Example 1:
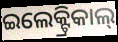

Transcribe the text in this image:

ଇଲେକ୍ଟ୍ରିକାଲ୍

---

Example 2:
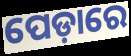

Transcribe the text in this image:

ପେଡ଼ାରେ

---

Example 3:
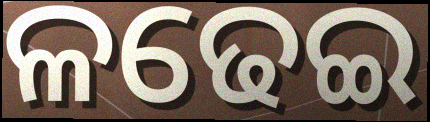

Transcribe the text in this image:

ଳଢେଇ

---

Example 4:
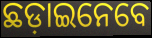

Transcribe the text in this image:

ଛଡ଼ାଇନେବେ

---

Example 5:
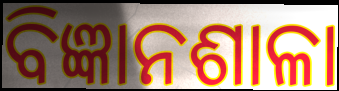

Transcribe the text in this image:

ବିଜ୍ଞାନଶାଳା